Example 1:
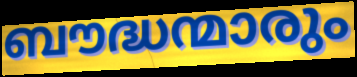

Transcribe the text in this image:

ബൗദ്ധന്മാരും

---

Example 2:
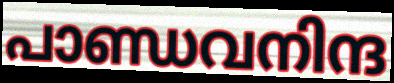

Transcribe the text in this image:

പാണ്ഡവനിന്ദ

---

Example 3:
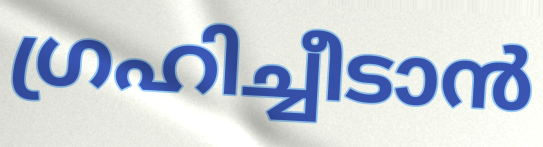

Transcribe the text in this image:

ഗ്രഹിച്ചീടാൻ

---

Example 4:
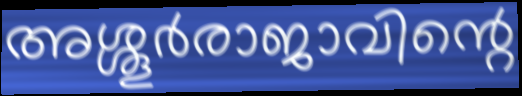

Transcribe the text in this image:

അശ്ശൂർരാജാവിന്റെ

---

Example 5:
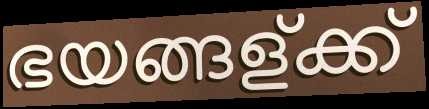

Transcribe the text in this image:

ഭയങ്ങള്ക്ക്